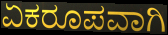
ಏಕರೂಪವಾಗಿ